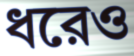
ধরেও